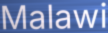
Malawi